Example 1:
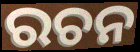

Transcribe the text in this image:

ରଚନ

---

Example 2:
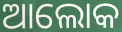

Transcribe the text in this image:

ଆଲୋକ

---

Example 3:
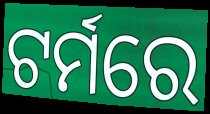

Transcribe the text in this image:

ଟର୍ମରେ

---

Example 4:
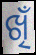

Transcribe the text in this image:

ଖିଁ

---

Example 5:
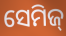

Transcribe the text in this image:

ସେମିଜ୍